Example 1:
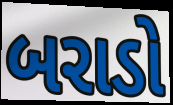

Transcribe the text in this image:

બરાડો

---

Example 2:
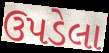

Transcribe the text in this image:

ઉપડેલા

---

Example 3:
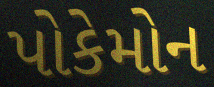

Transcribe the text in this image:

પોકેમોન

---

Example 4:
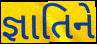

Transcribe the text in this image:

જ્ઞાતિને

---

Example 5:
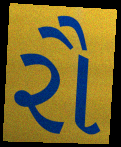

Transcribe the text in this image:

રૌ